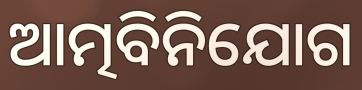
ଆତ୍ମବିନିଯୋଗ